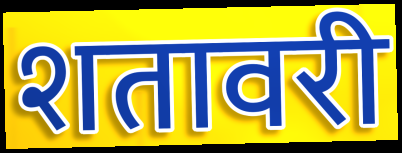
शतावरी